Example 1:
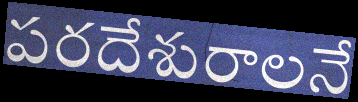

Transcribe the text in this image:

పరదేశురాలనే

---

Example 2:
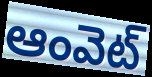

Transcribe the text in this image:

ఆంవెట్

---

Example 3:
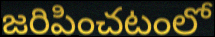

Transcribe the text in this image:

జరిపించటంలో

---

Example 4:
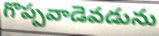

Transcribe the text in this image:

గొప్పవాడెవడును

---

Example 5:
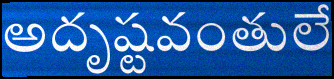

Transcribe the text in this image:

అదృష్టవంతులే